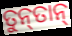
ତୁନ୍‍ତାନ୍